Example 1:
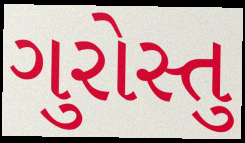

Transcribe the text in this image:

ગુરોસ્તુ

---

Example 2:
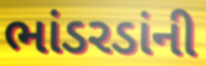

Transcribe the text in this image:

ભાંડરડાંની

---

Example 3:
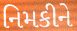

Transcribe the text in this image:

નિમકીને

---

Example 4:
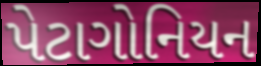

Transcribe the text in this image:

પેટાગોનિયન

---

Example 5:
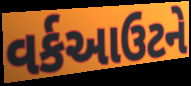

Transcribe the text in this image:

વર્કઆઉટને